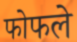
फोफले